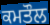
ਕਮਤੌਲ